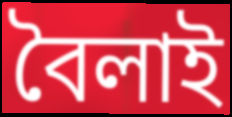
বৈলাই